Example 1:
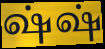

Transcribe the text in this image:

ஷ்ஷ்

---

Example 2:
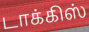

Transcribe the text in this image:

டாக்கிஸ்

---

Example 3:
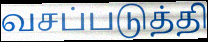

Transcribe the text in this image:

வசப்படுத்தி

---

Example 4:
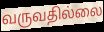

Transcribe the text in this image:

வருவதில்லை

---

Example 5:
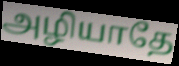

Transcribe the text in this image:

அழியாதே